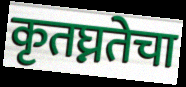
कृतघ्नतेचा